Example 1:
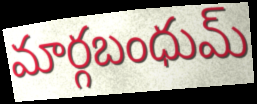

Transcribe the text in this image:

మార్గబంధుమ్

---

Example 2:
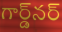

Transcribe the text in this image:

గార్డ్‌నర్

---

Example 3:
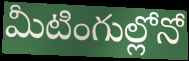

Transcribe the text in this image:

మీటింగుల్లోనో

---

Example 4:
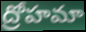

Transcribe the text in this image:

ద్రోహమా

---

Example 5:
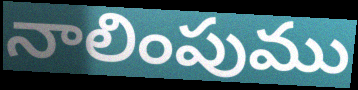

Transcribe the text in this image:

నాలింపుము